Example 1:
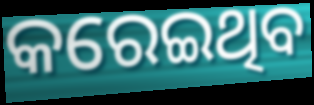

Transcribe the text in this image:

କରେଇଥିବ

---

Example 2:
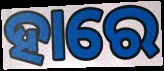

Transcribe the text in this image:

ହାରେ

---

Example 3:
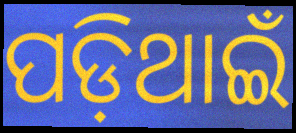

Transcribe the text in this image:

ପଡ଼ିଥାଇଁ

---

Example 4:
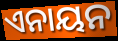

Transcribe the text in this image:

ଏନାୟନ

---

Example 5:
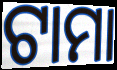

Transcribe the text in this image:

ଟାମା